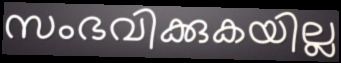
സംഭവിക്കുകയില്ല